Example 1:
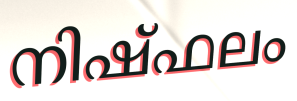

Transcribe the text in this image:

നിഷ്ഫലം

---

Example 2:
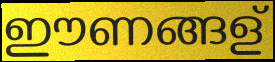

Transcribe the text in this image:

ഈണങ്ങള്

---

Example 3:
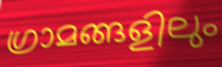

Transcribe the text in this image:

ഗ്രാമങ്ങളിലും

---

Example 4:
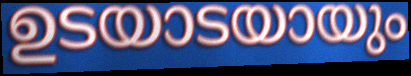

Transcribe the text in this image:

ഉടയാടയായും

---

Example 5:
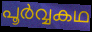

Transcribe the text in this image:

പൂർവ്വകഥ